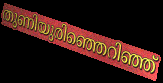
തുണിയുരിഞ്ഞെറിഞ്ഞ്